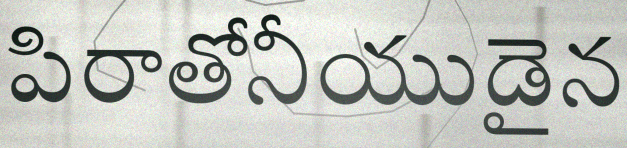
పిరాతోనీయుడైన